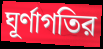
ঘূর্ণাগতির